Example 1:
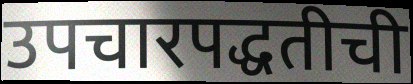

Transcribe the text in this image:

उपचारपद्धतीची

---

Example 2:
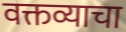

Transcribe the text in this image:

वक्तव्याचा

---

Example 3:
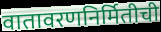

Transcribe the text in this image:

वातावरणनिर्मितीची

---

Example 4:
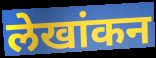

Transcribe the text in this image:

लेखांकन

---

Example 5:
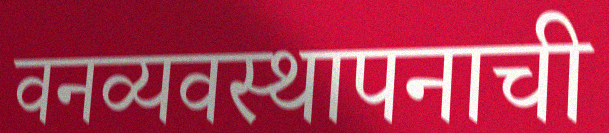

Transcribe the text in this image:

वनव्यवस्थापनाची